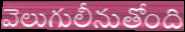
వెలుగులీనుతోంది